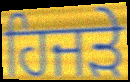
ਹਿਜੜੇ